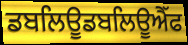
ਡਬਲਿਊਡਬਲਿਊਐੱਫ